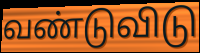
வண்டுவிடு